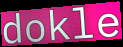
dokle